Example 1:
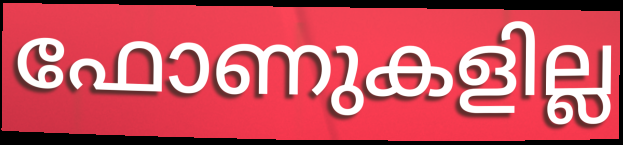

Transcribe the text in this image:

ഫോണുകളില്ല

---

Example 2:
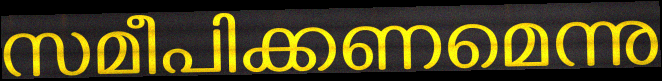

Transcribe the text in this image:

സമീപിക്കണമെന്നു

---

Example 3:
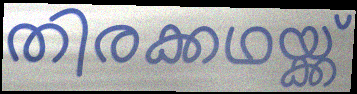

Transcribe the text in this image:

തിരക്കഥയ്ക്ക്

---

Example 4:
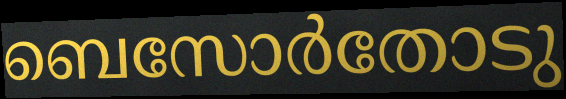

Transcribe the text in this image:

ബെസോർതോടു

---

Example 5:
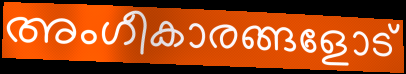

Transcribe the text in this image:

അംഗീകാരങ്ങളോട്